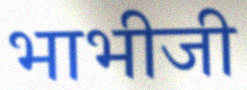
भाभीजी